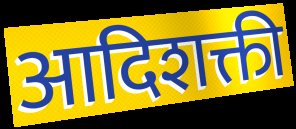
आदिशक्ती